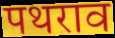
पथराव